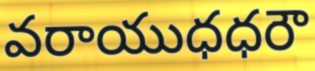
వరాయుధధరౌ